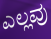
ಎಲ್ಲವು